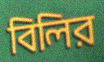
বিলির